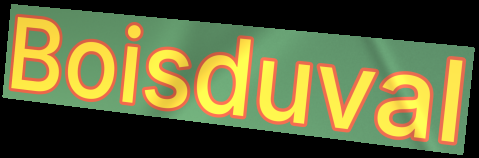
Boisduval